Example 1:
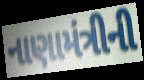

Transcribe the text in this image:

નાણામંત્રીની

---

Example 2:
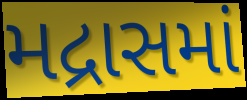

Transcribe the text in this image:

મદ્રાસમાં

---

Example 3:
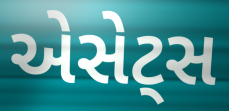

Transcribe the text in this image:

એસેટ્સ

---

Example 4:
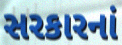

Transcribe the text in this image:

સરકારનાં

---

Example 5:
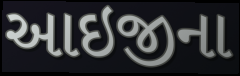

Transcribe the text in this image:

આઇજીના